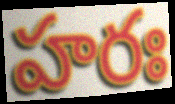
హరః